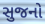
સુજનો